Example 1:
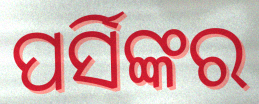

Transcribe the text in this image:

ପର୍ସିଙ୍କର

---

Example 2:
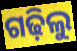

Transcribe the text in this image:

ଗଢ଼ିଲୁ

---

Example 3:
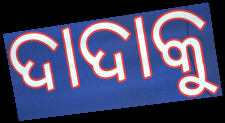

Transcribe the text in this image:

ଦାଦାକୁ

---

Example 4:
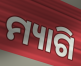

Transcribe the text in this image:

ମ୍ୟାଗି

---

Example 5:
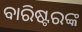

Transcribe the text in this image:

ବାରିଷ୍ଟରଙ୍କ